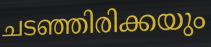
ചടഞ്ഞിരിക്കയും